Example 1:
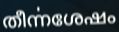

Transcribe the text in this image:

തീൎന്നശേഷം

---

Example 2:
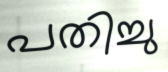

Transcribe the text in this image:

പതിച്ചു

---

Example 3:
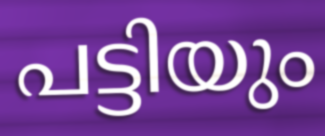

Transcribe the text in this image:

പട്ടിയും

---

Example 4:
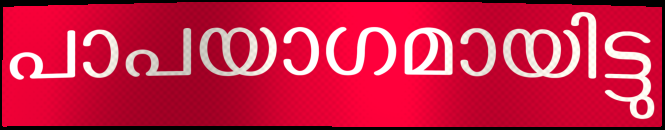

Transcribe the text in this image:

പാപയാഗമായിട്ടു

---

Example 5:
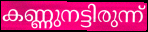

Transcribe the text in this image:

കണ്ണുനട്ടിരുന്ന്